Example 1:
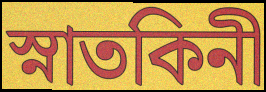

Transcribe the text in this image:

স্নাতকিনী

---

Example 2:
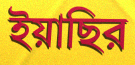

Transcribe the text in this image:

ইয়াছির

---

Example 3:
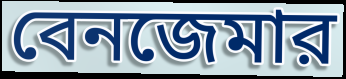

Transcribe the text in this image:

বেনজেমার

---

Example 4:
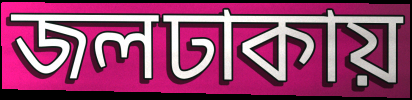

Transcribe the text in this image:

জলঢাকায়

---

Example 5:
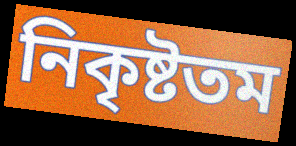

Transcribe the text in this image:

নিকৃষ্টতম